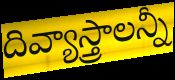
దివ్యాస్త్రాలన్నీ